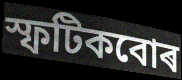
স্ফটিকবোৰ